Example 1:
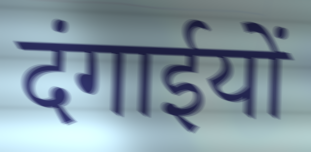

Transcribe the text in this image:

दंगाईयों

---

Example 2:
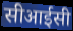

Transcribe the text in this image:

सीआईसी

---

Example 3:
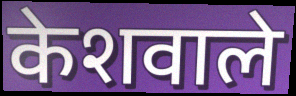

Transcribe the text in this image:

केशवाले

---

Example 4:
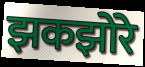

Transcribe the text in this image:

झकझोरे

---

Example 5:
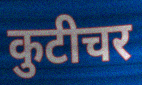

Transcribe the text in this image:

कुटीचर